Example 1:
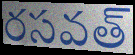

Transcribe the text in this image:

రసవత్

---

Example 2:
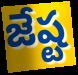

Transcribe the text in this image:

జేష్ట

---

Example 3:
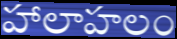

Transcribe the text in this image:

హాలాహలం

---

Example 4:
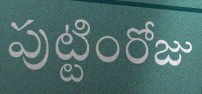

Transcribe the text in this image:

పుట్టింరోజు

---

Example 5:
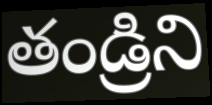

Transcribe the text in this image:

తండ్రిని